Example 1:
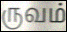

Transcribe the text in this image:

ருவம்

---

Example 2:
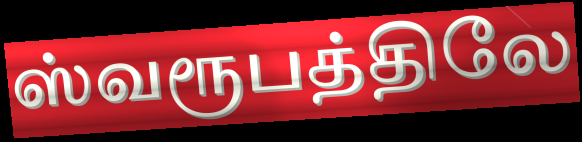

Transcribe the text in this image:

ஸ்வரூபத்திலே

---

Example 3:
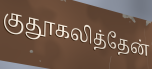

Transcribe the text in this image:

குதூகலித்தேன்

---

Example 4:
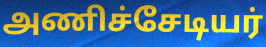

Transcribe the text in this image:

அணிச்சேடியர்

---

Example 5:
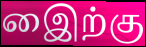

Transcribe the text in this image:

இைற்கு